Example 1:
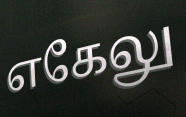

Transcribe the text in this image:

எகேலு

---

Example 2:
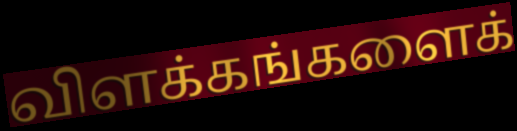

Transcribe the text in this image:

விளக்கங்களைக்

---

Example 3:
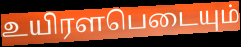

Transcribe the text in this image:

உயிரளபெடையும்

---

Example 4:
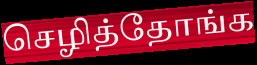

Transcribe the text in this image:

செழித்தோங்க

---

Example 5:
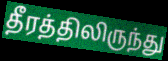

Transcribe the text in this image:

தீரத்திலிருந்து